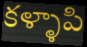
కళ్ళాపి